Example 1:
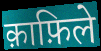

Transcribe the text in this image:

क़ाफ़िले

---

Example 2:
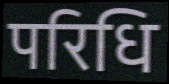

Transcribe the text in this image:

परिधि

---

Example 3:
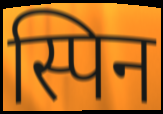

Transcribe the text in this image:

स्पिन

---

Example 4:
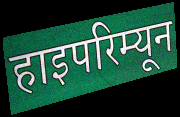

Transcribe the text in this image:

हाइपरिम्यून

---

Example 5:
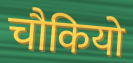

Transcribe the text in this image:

चौकियो